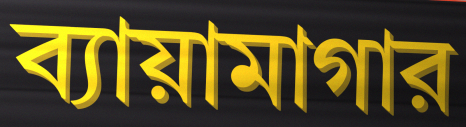
ব্যায়ামাগার